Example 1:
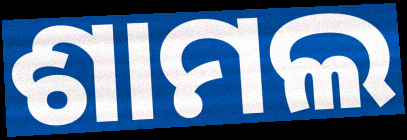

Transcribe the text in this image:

ଶାମଲ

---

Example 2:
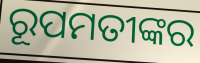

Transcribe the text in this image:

ରୂପମତୀଙ୍କର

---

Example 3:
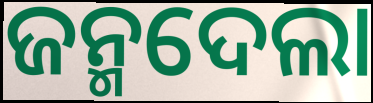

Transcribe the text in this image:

ଜନ୍ମଦେଲା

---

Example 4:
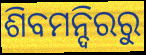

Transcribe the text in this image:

ଶିବମନ୍ଦିରରୁ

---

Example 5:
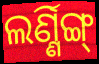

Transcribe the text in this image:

ଲର୍ଣ୍ଣିଙ୍ଗ୍